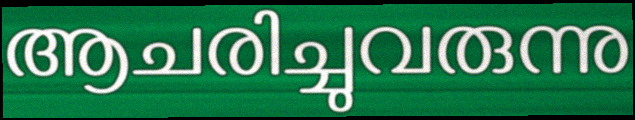
ആചരിച്ചുവരുന്നു